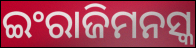
ଇଂରାଜିମନସ୍କ